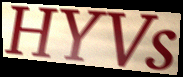
HYVs